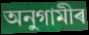
অনুগামীৰ